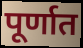
पूर्णात